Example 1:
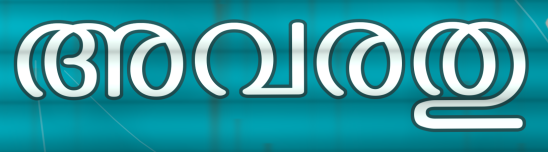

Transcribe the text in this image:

അവരതു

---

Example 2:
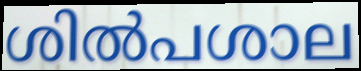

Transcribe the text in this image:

ശിൽപശാല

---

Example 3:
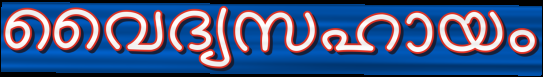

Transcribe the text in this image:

വൈദ്യസഹായം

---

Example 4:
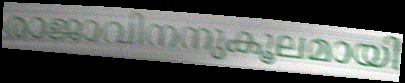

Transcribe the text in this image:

രാജാവിനനുകൂലമായി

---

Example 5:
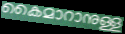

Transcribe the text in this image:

കൈമാറാനുള്ള